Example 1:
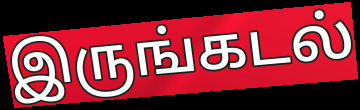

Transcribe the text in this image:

இருங்கடல்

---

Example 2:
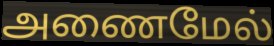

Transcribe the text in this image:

அணைமேல்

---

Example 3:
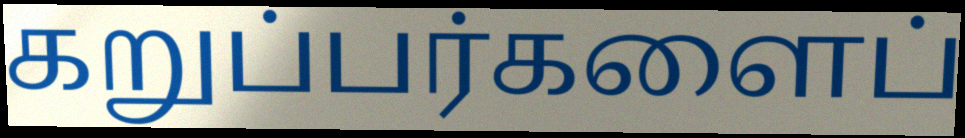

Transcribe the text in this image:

கறுப்பர்களைப்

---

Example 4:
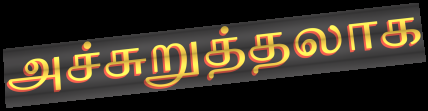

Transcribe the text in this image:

அச்சுறுத்தலாக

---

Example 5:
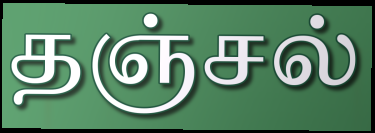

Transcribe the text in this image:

தஞ்சல்